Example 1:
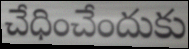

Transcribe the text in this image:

చేధించేందుకు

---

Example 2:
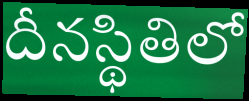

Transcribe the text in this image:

దీనస్థితిలో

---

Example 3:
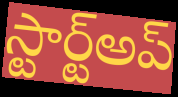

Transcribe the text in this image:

స్టార్ట్అప్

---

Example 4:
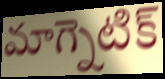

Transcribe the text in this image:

మాగ్నెటిక్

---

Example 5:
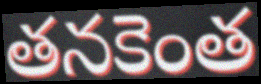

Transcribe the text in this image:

తనకెంత